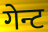
गेन्ट